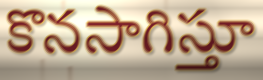
కొనసాగిస్తూ